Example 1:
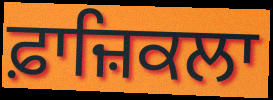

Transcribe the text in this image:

ਫ਼ਾਜ਼ਿਕਲਾ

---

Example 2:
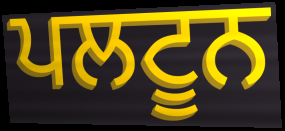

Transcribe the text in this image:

ਪਲਟੂਨ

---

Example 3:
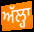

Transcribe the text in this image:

ਅੱਲ੍ਹਾ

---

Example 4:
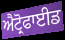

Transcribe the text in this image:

ਐਟ੍ਰੋਫਾਈਡ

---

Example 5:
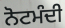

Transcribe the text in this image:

ਨੋਟਮੰਦੀ